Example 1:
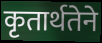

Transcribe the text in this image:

कृतार्थतेने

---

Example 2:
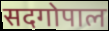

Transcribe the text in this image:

सदगोपाल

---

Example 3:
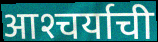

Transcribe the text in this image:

आश्चर्याची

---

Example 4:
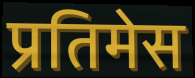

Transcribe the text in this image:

प्रतिमेस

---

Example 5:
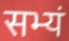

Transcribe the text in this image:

सभ्यं